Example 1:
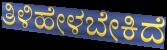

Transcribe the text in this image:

ತಿಳಿಹೇಳಬೇಕಿದೆ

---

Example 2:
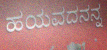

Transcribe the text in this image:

ಹಯವದನನ್ನ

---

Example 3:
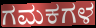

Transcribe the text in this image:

ಗಮಕಗಳ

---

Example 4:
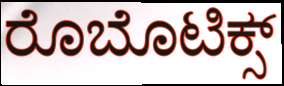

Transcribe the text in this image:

ರೊಬೊಟಿಕ್ಸ್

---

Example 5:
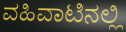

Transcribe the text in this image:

ವಹಿವಾಟಿನಲ್ಲಿ